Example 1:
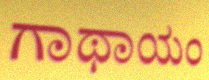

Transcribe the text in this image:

ಗಾಥಾಯಂ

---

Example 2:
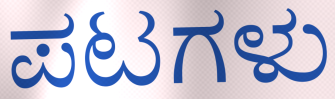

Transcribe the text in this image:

ಪಟಗಳು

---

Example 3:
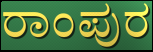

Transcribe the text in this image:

ರಾಂಪುರ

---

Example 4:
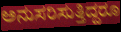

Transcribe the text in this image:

ಅನುಸರಿಸುತ್ತಿದ್ದರೂ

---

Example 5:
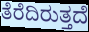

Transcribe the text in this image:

ತೆರೆದಿರುತ್ತದೆ